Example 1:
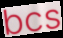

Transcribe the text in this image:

bcs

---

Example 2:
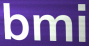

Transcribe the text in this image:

bmi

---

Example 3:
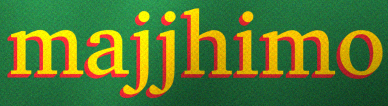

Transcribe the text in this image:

majjhimo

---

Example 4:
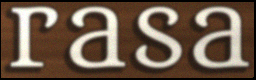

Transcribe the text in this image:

rasa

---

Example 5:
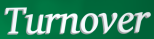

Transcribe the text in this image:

Turnover